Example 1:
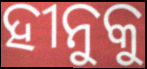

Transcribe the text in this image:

ହୀନୁକୁ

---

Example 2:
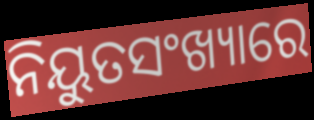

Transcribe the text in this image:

ନିୟୁତସଂଖ୍ୟାରେ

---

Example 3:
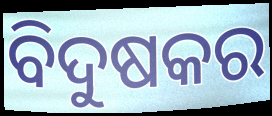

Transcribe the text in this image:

ବିଦୁଷକର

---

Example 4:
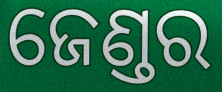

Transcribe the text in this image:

ଜେଣ୍ଡର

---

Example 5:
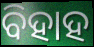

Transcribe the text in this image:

ବିହାହ